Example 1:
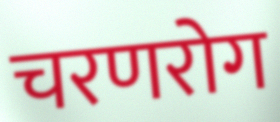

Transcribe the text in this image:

चरणरोग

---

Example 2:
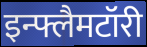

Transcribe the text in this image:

इन्फ्लैमटॉरी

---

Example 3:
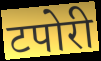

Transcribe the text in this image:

टपोरी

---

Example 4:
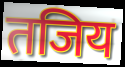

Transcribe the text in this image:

तजिय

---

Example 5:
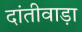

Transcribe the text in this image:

दांतीवाड़ा